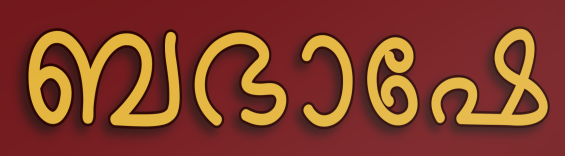
ബഭാഷേ